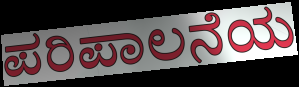
ಪರಿಪಾಲನೆಯ